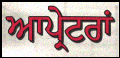
ਆਪ੍ਰੇਟਰਾਂ